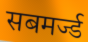
सबमर्ज्ड